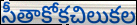
సీతాకోకచిలుకల